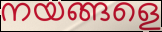
നയങ്ങളെ